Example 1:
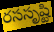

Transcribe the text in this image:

రససృష్టి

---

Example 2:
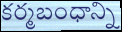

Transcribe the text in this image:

కర్మబంధాన్ని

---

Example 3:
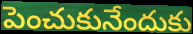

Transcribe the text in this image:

పెంచుకునేందుకు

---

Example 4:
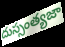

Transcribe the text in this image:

దుస్సంత్యజా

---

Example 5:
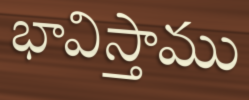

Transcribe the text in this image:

భావిస్తాము